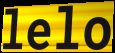
lelo